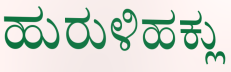
ಹುರುಳಿಹಕ್ಲು